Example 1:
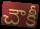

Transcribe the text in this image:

చౌకీ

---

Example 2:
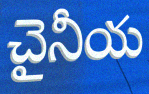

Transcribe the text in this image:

చైనీయ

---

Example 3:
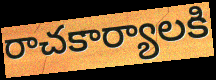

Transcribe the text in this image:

రాచకార్యాలకి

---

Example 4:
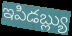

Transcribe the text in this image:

ఇపిడబ్ల్యు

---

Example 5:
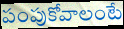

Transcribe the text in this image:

పంపుకోవాలంటే